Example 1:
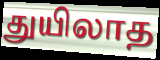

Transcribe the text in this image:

துயிலாத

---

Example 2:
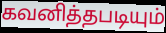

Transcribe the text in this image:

கவனித்தபடியும்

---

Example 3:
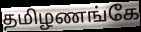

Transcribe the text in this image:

தமிழணங்கே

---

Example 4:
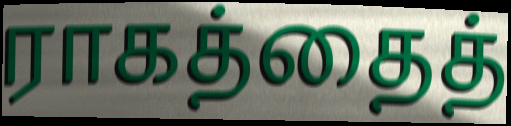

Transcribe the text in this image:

ராகத்தைத்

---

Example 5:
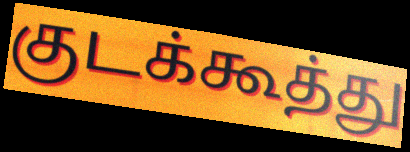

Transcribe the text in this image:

குடக்கூத்து